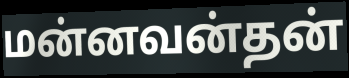
மன்னவன்தன்